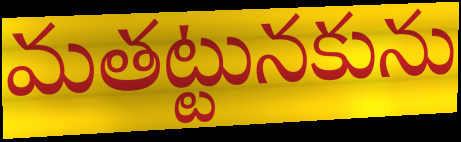
మతట్టునకును